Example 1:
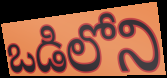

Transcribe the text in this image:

ఒడిలోని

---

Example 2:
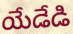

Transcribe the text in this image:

యేడేడి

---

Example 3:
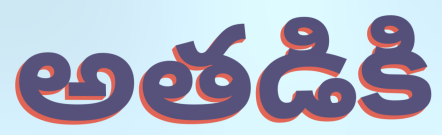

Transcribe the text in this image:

అతడికి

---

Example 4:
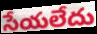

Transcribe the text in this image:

సేయలేదు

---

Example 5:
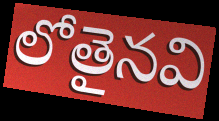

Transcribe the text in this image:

లోతైనవి